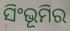
ସିଂଭୂମିର